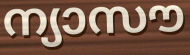
ന്യാസൗ